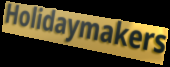
Holidaymakers